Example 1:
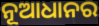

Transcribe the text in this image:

ନୂଆଧାନର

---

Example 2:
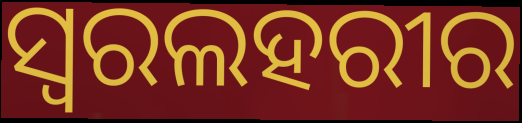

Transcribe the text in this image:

ସ୍ୱରଲହରୀର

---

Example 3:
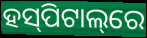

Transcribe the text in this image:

ହସ୍‌ପିଟାଲ୍‌ରେ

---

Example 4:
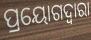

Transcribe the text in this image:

ପ୍ରୟୋଗଦ୍ୱାରା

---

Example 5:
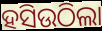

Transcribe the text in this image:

ହସିଉଠିଲା